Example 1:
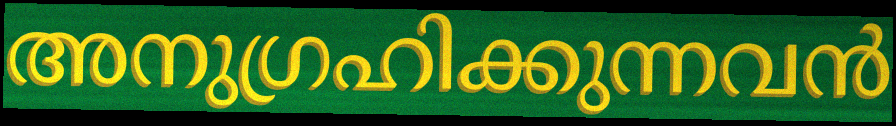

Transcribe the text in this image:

അനുഗ്രഹിക്കുന്നവൻ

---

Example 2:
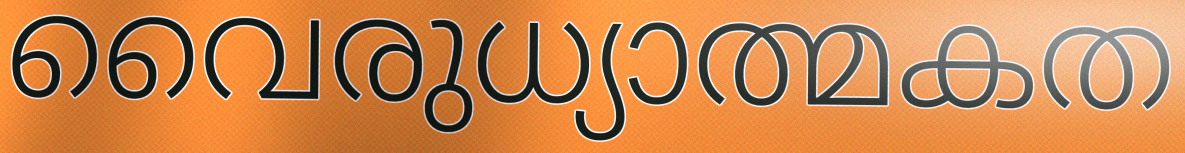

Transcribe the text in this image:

വൈരുധ്യാത്മകത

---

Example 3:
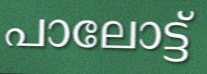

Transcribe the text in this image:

പാലോട്ട്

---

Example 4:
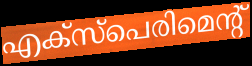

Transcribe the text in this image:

എക്സ്പെരിമെന്റ്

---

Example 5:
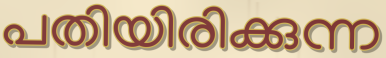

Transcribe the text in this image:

പതിയിരിക്കുന്ന